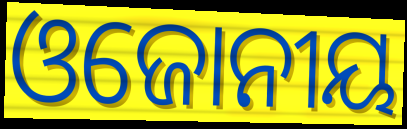
ଓଜୋନୀୟ